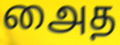
அைத